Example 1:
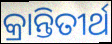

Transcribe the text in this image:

କ୍ରାନ୍ତିତୀର୍ଥ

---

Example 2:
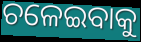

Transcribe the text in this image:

ଚଳେଇବାକୁ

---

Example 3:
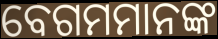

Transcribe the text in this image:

ବେଗମମାନଙ୍କ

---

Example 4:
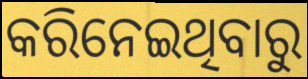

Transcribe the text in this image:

କରିନେଇଥିବାରୁ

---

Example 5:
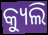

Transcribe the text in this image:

କ୍ୟୁଲି